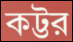
কট্টর